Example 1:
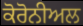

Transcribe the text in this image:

ਕੋਰੋਨੀਅਲ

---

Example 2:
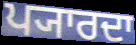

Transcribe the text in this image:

ਪ੍ਯਾਰਦਾ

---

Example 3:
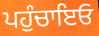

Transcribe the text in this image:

ਪਹੁੰਚਾਇਓ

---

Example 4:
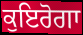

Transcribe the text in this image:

ਕੁਇਰੋਗਾ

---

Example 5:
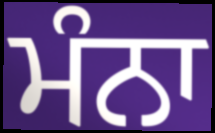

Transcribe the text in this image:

ਮੰਨਾ